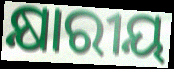
କ୍ଷାରୀୟ